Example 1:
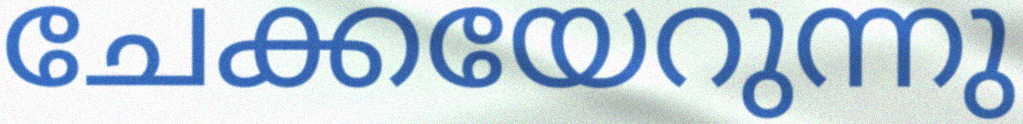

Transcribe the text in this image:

ചേക്കയേറുന്നു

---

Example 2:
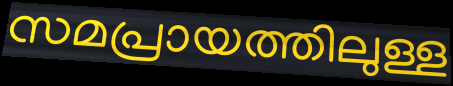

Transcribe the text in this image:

സമപ്രായത്തിലുള്ള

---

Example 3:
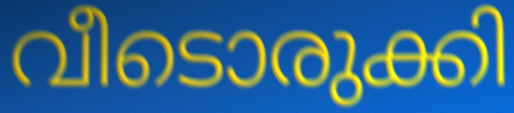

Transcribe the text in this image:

വീടൊരുക്കി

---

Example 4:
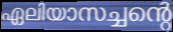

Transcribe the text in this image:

ഏലിയാസച്ചന്റെ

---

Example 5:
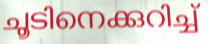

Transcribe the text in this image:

ചൂടിനെക്കുറിച്ച്